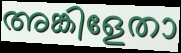
അങ്കിളേതാ